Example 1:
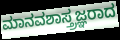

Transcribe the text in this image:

ಮಾನವಶಾಸ್ತ್ರಜ್ಞರಾದ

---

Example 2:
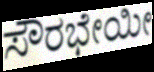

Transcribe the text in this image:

ಸೌರಭೇಯೀ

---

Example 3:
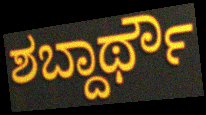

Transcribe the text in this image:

ಶಬ್ದಾರ್ಥೌ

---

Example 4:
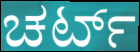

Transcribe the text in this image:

ಚರ್ಟ್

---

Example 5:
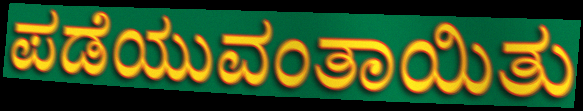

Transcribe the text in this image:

ಪಡೆಯುವಂತಾಯಿತು